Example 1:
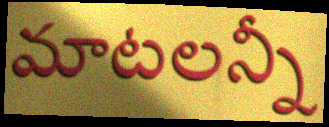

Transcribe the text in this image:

మాటలన్నీ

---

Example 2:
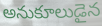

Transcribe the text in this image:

అనుకూలుడైన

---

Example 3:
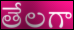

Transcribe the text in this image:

తేలగా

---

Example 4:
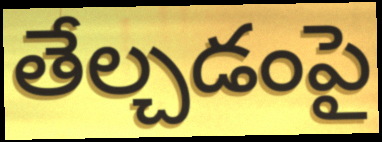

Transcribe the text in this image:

తేల్చడంపై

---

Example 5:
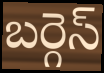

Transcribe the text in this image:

బర్గెస్